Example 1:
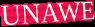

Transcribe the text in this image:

UNAWE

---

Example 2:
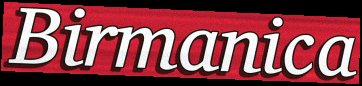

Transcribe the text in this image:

Birmanica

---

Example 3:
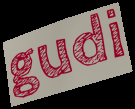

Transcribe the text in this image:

gudi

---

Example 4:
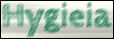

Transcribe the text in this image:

Hygieia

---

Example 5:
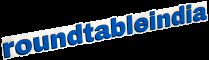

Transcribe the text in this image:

roundtableindia